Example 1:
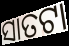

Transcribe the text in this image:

ସାତଟା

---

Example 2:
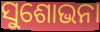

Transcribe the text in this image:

ସୁଶୋଭନା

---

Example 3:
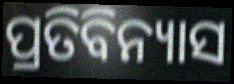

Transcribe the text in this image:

ପ୍ରତିବିନ୍ୟାସ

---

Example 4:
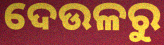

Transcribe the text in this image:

ଦେଉଳରୁ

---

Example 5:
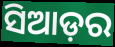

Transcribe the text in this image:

ସିଆଡ଼ର